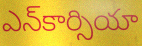
ఎన్‌కార్సియా